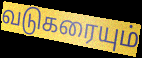
வடுகரையும்